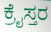
ಕ್ರೈಸ್ತರ